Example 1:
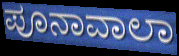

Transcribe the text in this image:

ಪೂನಾವಾಲಾ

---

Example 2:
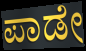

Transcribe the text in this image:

ಪಾಡೇ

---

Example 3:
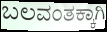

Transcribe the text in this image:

ಬಲವಂತಕ್ಕಾಗಿ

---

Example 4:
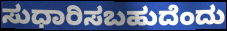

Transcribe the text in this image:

ಸುಧಾರಿಸಬಹುದೆಂದು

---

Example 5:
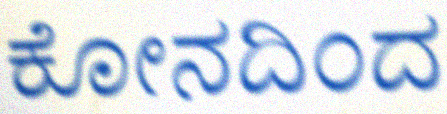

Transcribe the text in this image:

ಕೋನದಿಂದ